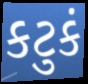
કટુકં